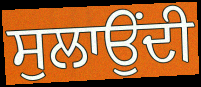
ਸੁਲਾਉਂਦੀ